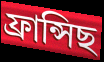
ফ্ৰান্সিছ